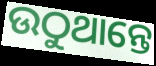
ଉଠୁଥାନ୍ତେ